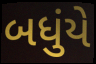
બધુંયે